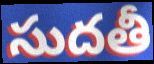
సుదతీ